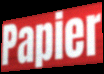
Papier